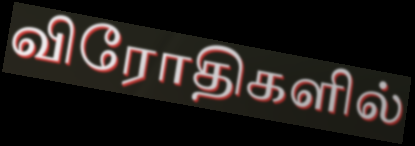
விரோதிகளில்